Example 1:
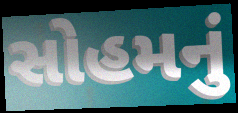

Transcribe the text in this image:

સોહમનું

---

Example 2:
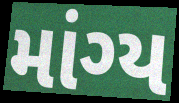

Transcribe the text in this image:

માંગ્ય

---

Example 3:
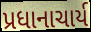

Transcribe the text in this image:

પ્રધાનાચાર્ય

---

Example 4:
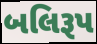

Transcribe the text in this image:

બલિરૂપ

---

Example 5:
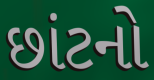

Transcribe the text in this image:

છાંટનો